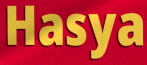
Hasya